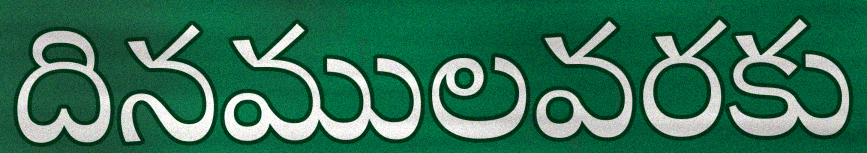
దినములవరకు